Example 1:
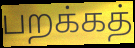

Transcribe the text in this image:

பறக்கத்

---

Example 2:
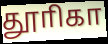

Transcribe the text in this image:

தூரிகா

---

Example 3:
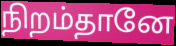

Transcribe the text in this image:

நிறம்தானே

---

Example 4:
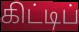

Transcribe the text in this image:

கிட்டிப்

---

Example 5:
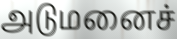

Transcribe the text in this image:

அடுமனைச்